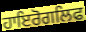
ਹਾਇਰੋਗਲਿਫ